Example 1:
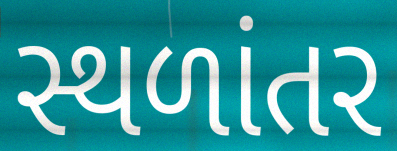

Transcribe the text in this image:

સ્થળાંતર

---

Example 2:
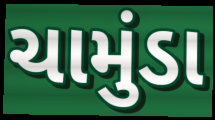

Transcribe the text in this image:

ચામુંડા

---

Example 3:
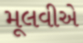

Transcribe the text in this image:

મૂલવીએ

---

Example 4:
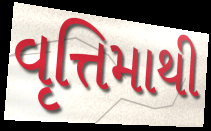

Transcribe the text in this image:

વૃત્તિમાથી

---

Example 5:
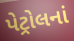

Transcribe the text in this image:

પેટ્રોલનાં